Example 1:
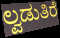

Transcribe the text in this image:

ಲ್ವಡುತಿರೆ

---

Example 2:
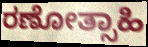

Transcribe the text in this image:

ರಣೋತ್ಸಾಹಿ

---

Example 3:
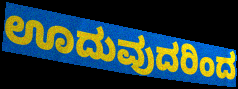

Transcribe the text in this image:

ಊದುವುದರಿಂದ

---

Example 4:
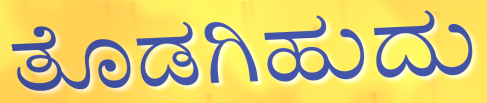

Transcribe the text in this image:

ತೊಡಗಿಹುದು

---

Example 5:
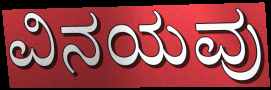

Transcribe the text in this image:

ವಿನಯವು